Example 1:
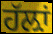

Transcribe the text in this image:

ਹੱਲ਼ਾਂ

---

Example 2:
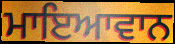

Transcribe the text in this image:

ਮਾਇਆਵਾਨ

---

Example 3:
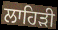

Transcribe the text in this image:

ਲਾਹਿੜੀ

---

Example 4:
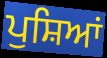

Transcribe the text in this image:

ਪੁਸ਼ਿਆਂ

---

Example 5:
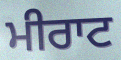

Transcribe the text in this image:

ਮੀਰਾਟ